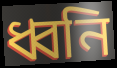
ধ্বনি